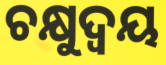
ଚକ୍ଷୁଦ୍ଵୟ